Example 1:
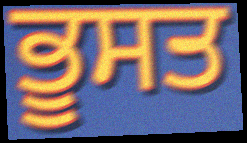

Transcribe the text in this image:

ਭੂਸਤ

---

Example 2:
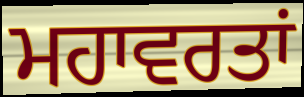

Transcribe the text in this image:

ਮਹਾਵਰਤਾਂ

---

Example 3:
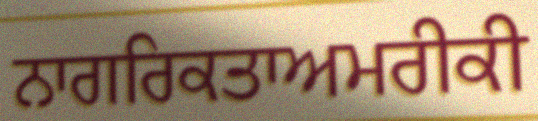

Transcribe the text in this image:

ਨਾਗਰਿਕਤਾਅਮਰੀਕੀ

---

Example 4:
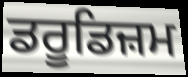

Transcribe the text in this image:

ਡਰੂਡਿਜ਼ਮ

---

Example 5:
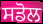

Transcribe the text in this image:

ਸਡੋਲ